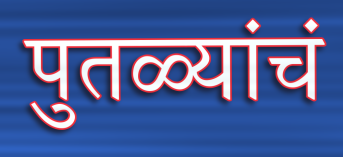
पुतळ्यांचं